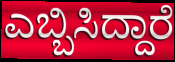
ಎಬ್ಬಿಸಿದ್ದಾರೆ